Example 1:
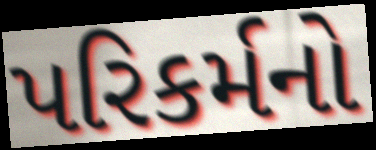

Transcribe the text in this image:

પરિકર્મનો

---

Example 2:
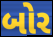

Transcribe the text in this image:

બોર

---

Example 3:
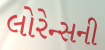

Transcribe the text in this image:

લોરેન્સની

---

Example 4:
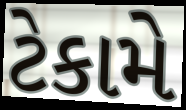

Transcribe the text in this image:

ટેકામે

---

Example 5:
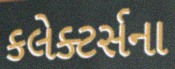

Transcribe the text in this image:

કલેક્ટર્સના